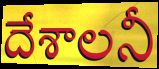
దేశాలనీ